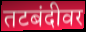
तटबंदीवर